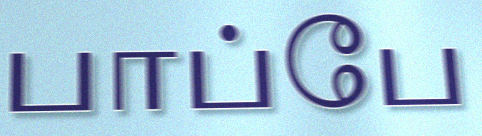
பாப்பே